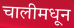
चालीमधून